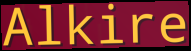
Alkire